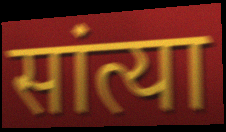
सांत्या